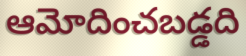
ఆమోదించబడ్డది